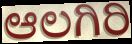
ಆಲಗಿರಿ